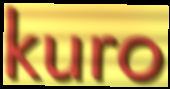
kuro